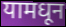
यामधून